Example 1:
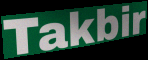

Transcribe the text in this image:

Takbir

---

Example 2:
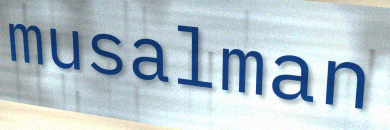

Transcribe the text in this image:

musalman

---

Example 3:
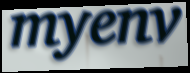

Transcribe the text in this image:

myenv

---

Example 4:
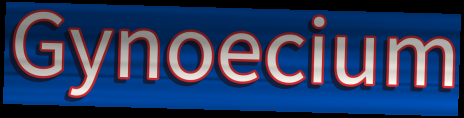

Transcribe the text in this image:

Gynoecium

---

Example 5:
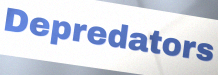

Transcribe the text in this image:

Depredators